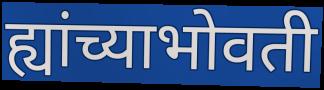
ह्यांच्याभोवती